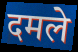
दमले